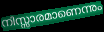
നിസ്സാരമാണെന്നും